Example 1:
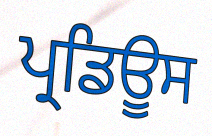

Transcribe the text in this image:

ਪ੍ਰਡਿਊਸ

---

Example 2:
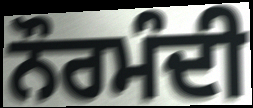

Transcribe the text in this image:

ਨੌਰਮੰਦੀ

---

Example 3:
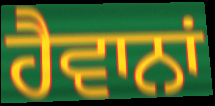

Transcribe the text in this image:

ਹੈਵਾਨਾਂ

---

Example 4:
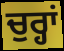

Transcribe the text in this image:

ਚੁਰ੍ਹਾਂ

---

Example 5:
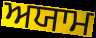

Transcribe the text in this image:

ਅਯਾਮ